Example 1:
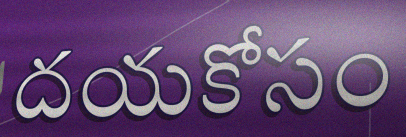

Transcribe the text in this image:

దయకోసం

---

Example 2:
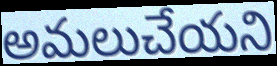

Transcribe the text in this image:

అమలుచేయని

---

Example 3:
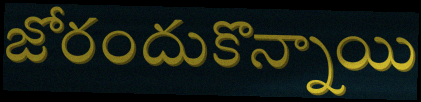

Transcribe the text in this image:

జోరందుకొన్నాయి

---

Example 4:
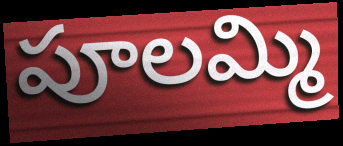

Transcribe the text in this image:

పూలమ్మి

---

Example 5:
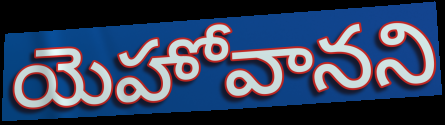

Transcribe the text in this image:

యెహోవానని